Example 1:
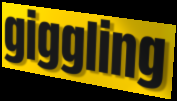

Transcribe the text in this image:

giggling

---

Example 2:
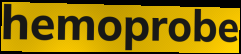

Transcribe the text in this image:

hemoprobe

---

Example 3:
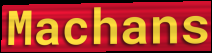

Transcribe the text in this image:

Machans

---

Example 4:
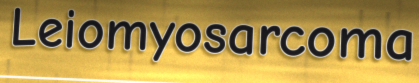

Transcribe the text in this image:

Leiomyosarcoma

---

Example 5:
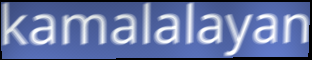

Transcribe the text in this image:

kamalalayan